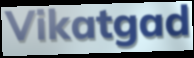
Vikatgad